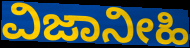
ವಿಜಾನೀಹಿ